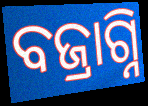
ବଜ୍ରାଗ୍ନି